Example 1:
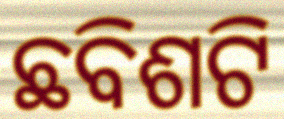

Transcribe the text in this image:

ଛବିଶଟି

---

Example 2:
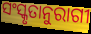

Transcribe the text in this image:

ସଂସ୍କୃତାନୁରାଗୀ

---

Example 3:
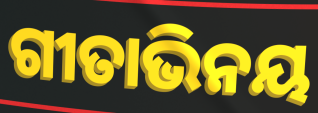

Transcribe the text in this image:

ଗୀତାଭିନୟ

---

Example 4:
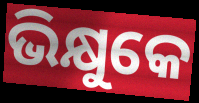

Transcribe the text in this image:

ଭିକ୍ଷୁକେ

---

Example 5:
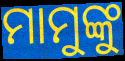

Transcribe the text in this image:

ମାମୁଙ୍କୁ